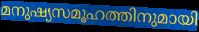
മനുഷ്യസമൂഹത്തിനുമായി